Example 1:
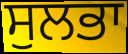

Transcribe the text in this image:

ਸੁਲਭਾ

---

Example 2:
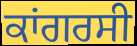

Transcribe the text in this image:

ਕਾਂਗਰਸੀ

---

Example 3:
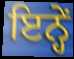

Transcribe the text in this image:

ਇਨ੍ਹੇਂ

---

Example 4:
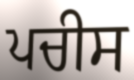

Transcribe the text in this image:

ਪਚੀਸ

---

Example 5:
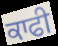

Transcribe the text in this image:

ਕਾਫੀ